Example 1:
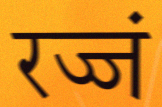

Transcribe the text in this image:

रज्जं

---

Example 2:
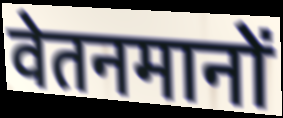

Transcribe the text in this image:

वेतनमानों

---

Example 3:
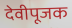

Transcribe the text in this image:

देवीपूजक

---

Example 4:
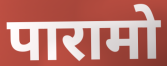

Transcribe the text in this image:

पारामो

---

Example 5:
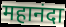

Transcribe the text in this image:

महानंदा